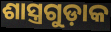
ଶାସ୍ତ୍ରଗୁଡ଼ାକ